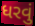
ધરવું